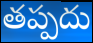
తప్పదు